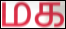
மக